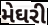
મેઘરી